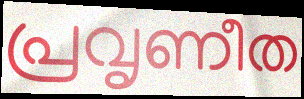
പ്രവൃണീത